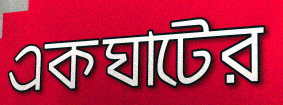
একঘাটের